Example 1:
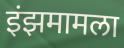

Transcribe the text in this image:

इंझमामला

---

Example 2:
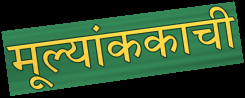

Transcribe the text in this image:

मूल्यांककाची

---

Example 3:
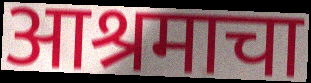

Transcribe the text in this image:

आश्रमाचा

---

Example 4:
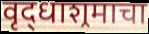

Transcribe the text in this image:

वृद्धाश्रमाचा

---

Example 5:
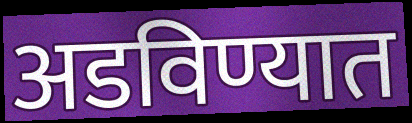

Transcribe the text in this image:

अडविण्यात